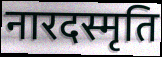
नारदस्मृति